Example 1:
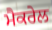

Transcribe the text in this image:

ਮੈਕਰੇਲ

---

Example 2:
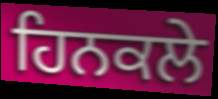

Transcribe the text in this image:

ਹਿਨਕਲੇ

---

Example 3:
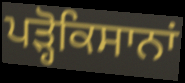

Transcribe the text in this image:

ਪੜ੍ਹੋਕਿਸਾਨਾਂ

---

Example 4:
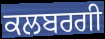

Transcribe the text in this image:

ਕਲਬਰਗੀ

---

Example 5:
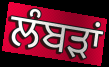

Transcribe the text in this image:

ਲੰਬੜਾਂ